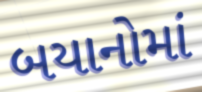
બયાનોમાં